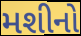
મશીનો